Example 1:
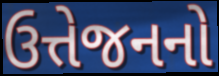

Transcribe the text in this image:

ઉત્તેજનનો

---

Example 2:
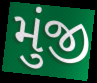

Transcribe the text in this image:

મુંજી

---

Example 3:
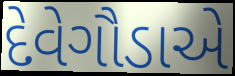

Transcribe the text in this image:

દેવેગૌડાએ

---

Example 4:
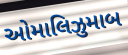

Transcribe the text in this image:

ઓમાલિઝુમાબ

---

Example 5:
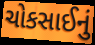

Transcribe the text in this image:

ચોકસાઈનું